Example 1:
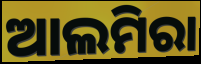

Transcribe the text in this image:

ଆଲମିରା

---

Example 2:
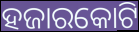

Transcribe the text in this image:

ହଜାରକୋଟି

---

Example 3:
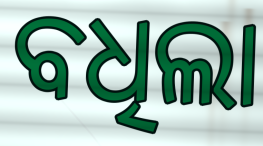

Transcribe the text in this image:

ବଧିଲା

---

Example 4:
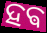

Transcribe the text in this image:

ହଵ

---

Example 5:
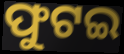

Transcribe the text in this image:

ଫୁଟଇ